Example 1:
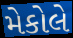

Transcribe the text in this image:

મેકોલે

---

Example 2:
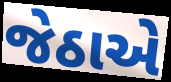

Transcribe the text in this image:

જેઠાએ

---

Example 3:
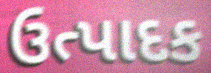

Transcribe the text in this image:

ઉત્પાદક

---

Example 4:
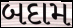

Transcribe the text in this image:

બદામ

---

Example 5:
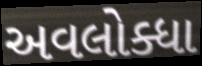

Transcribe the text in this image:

અવલોક્ધા